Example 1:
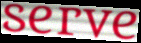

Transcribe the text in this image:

serve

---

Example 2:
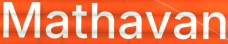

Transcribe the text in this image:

Mathavan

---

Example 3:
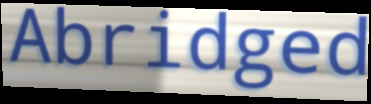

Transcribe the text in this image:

Abridged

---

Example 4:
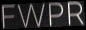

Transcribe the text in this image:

FWPR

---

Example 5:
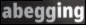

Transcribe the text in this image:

abegging